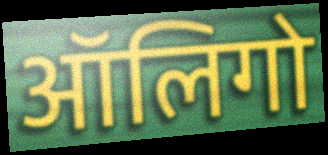
ऑलिगो